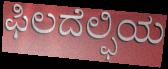
ಫಿಲದೆಲ್ಫಿಯ